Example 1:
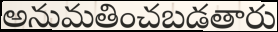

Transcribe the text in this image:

అనుమతించబడతారు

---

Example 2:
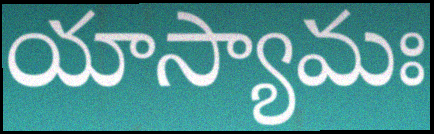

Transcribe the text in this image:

యాస్యామః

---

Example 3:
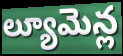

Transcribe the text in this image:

ల్యూమెన్ల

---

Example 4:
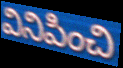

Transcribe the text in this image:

వినిపించి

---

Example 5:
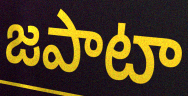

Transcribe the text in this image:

జపాటా